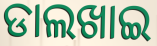
ଡାଲଖାଇ